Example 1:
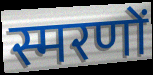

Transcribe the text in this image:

स्मरणों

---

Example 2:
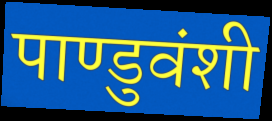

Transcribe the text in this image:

पाण्डुवंशी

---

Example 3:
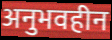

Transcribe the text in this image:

अनुभवहीन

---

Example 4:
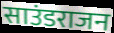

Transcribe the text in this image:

साउंडराजन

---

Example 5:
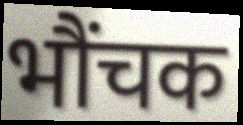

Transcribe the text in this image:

भौंचक